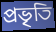
প্ৰভৃতি